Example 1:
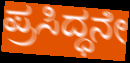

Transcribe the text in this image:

ಪ್ರಸಿದ್ಧನೇ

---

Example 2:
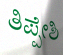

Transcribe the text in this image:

ತಿಪ್ಪೇಶಿ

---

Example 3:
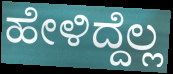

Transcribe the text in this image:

ಹೇಳಿದ್ದೆಲ್ಲ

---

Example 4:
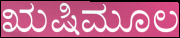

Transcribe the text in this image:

ಋಷಿಮೂಲ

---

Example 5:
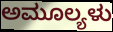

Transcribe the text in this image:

ಅಮೂಲ್ಯಳು